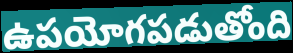
ఉపయోగపడుతోంది